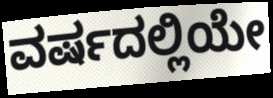
ವರ್ಷದಲ್ಲಿಯೇ